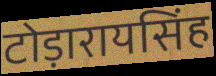
टोड़ारायसिंह